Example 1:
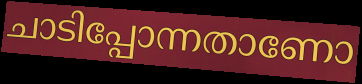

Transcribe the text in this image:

ചാടിപ്പോന്നതാണോ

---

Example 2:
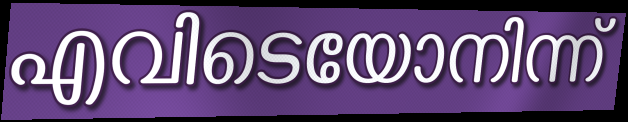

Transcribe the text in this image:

എവിടെയോനിന്ന്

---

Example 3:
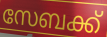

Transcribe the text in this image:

സേബക്ക്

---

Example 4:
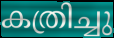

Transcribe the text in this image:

കത്രിച്ചു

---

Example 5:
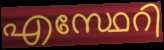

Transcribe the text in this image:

എസ്ഥേറി